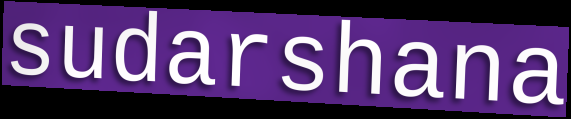
sudarshana